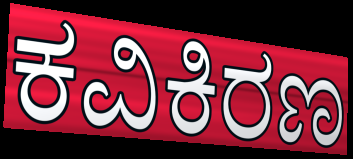
ಕವಿಕಿರಣ